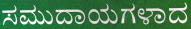
ಸಮುದಾಯಗಳಾದ